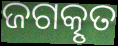
ଜଗତ୍କୃତ